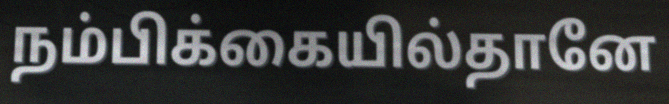
நம்பிக்கையில்தானே